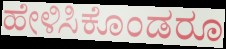
ಹೇಳಿಸಿಕೊಂಡರೂ